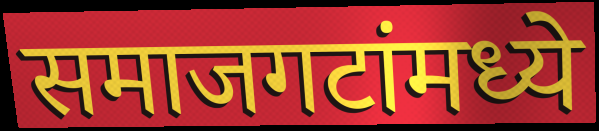
समाजगटांमध्ये